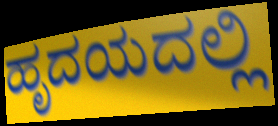
ಹೃದಯದಲ್ಲಿ